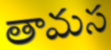
తామస